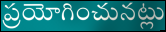
ప్రయోగించునట్లు